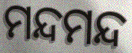
ମନ୍ଦମନ୍ଦ